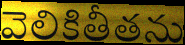
వెలికితీతను